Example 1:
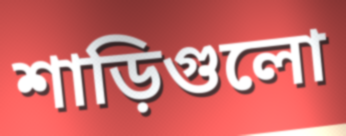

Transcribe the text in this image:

শাড়িগুলো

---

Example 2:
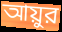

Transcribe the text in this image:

আয়ুর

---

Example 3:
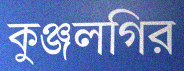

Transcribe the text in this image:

কুঞ্জলগির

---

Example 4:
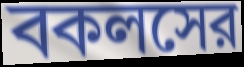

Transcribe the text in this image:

বকলসের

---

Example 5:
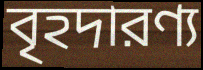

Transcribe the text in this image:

বৃহদারণ্য